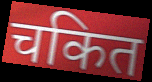
चकित